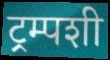
ट्रम्पशी